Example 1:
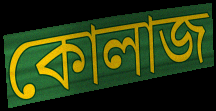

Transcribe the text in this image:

কোলাজ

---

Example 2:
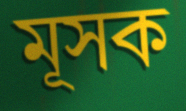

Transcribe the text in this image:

মূসক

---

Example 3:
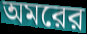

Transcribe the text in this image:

অমরের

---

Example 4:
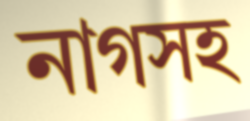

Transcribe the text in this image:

নাগসহ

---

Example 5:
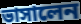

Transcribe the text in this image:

ভাসালেন